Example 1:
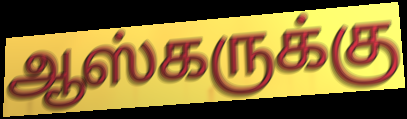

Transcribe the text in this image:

ஆஸ்கருக்கு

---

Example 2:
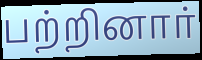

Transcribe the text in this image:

பற்றினார்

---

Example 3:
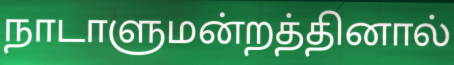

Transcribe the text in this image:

நாடாளுமன்றத்தினால்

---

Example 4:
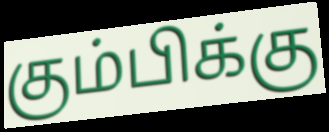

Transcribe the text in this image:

கும்பிக்கு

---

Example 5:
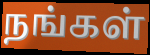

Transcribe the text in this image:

நங்கள்